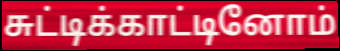
சுட்டிக்காட்டினோம்